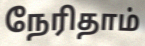
நேரிதாம்